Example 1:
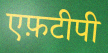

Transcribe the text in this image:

एफ़टीपी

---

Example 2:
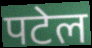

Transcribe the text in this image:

पटेल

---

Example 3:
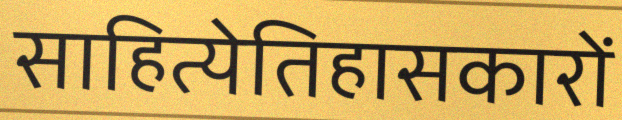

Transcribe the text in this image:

साहित्येतिहासकारों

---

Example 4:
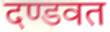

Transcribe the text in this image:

दण्‍डवत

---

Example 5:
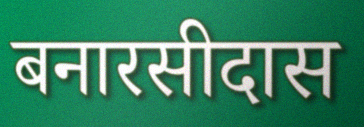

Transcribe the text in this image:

बनारसीदास